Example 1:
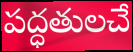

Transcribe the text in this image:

పద్ధతులచే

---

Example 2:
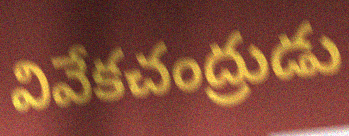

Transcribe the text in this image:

వివేకచంద్రుడు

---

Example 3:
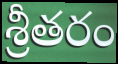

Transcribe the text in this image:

శ్రీతరం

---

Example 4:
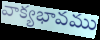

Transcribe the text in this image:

వాక్యభావము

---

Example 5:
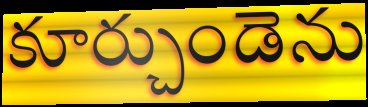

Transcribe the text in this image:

కూర్చుండెను